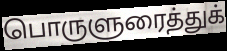
பொருளுரைத்துக்